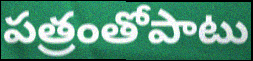
పత్రంతోపాటు